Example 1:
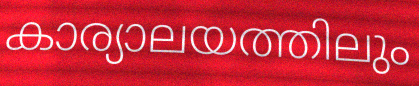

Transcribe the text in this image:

കാര്യാലയത്തിലും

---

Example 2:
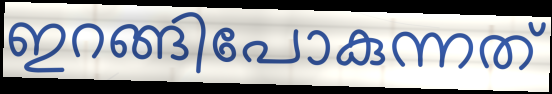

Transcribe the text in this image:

ഇറങ്ങിപോകുന്നത്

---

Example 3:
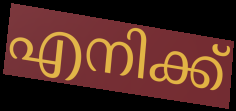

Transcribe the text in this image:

എനിക്ക്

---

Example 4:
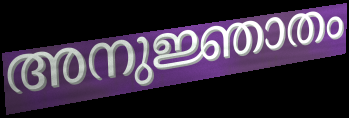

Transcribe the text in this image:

അനുജ്ഞാതം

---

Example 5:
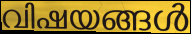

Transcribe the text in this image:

വിഷയങ്ങൾ